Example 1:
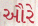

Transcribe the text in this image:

ઔરે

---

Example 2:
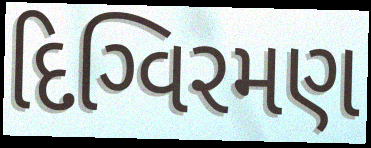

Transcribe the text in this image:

દિગ્વિરમણ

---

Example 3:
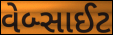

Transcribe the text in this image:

વેબ્સાઈટ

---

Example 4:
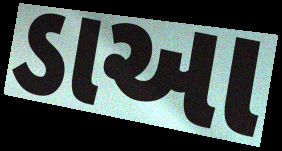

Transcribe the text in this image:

ડાઆ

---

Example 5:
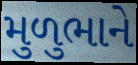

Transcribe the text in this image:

મુળુભાને